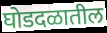
घोडदळातील